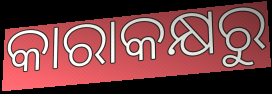
କାରାକକ୍ଷରୁ